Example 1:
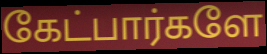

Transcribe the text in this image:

கேட்பார்களே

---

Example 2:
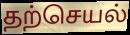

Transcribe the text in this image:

தற்செயல்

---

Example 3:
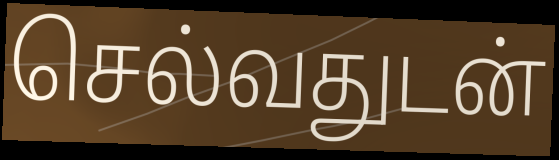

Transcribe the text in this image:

செல்வதுடன்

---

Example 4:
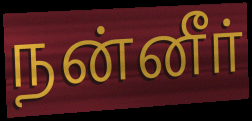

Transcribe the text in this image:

நன்னீர்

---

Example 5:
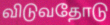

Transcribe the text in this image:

விடுவதோடு